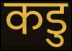
कडु